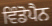
ਵਿੰਡੋਪੈਨ